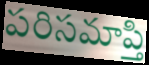
పరిసమాప్తి